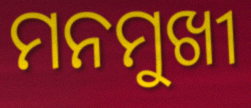
ମନମୁଖୀ